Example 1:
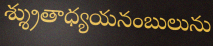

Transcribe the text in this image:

శ్శ్రుతాధ్యయనంబులును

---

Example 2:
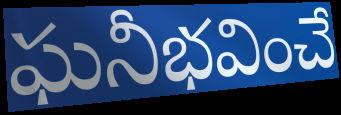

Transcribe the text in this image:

ఘనీభవించే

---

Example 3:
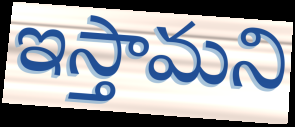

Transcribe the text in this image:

ఇస్తామని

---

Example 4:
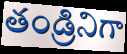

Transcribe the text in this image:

తండ్రినిగా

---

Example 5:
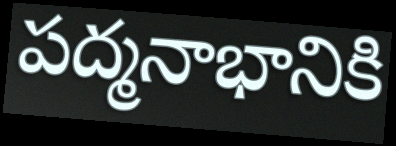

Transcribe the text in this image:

పద్మనాభానికి